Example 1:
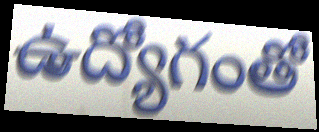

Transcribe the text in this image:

ఉద్యోగంతో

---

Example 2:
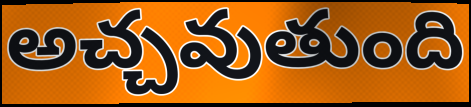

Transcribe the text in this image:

అచ్చవుతుంది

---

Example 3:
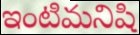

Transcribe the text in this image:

ఇంటిమనిషి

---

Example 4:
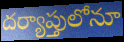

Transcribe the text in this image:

దర్యాప్తులోనూ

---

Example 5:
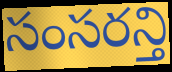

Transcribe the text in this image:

సంసరన్తి